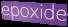
epoxide